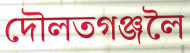
দৌলতগঞ্জলৈ